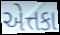
એત્તકા